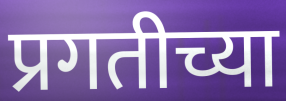
प्रगतीच्या